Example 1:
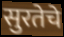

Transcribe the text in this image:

सुरतेचे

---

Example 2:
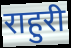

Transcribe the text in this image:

राहुरी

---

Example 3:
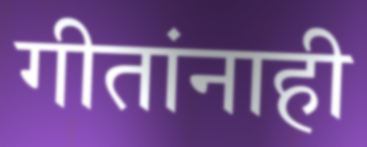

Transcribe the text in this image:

गीतांनाही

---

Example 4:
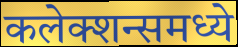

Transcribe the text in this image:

कलेक्शन्समध्ये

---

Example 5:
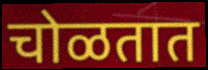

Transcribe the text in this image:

चोळतात